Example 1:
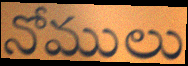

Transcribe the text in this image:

నోములు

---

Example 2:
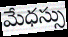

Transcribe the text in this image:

మేధస్సు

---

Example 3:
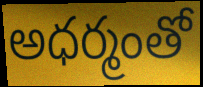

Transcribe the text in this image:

అధర్మంతో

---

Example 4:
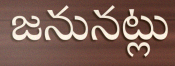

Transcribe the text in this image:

జనునట్లు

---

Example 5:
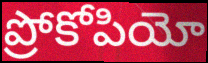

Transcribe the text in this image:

ప్రోకోపియో